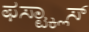
ಫಸ್ಟ್ಕ್ಲಾಸ್